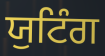
ਯੁਟਿੰਗ